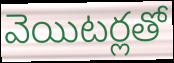
వెయిటర్లతో